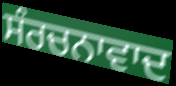
ਸੰਰਚਨਾਵਾਦ